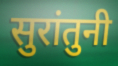
सुरांतुनी